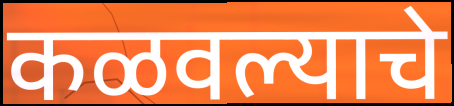
कळवल्याचे